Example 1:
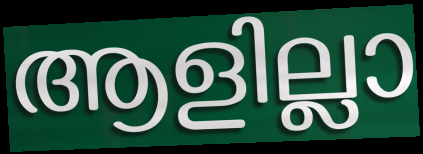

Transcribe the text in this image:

ആളില്ലാ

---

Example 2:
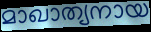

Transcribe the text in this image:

മാഖാത്യനായ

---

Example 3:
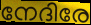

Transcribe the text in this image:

നേദിരേ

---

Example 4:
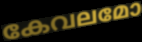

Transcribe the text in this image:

കേവലമോ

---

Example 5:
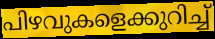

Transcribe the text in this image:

പിഴവുകളെക്കുറിച്ച്